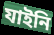
যাইনি